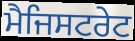
ਮੈਜਿਸਟਰੇਟ